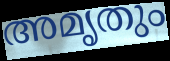
അമൃതും